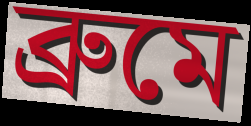
ব্রুমে